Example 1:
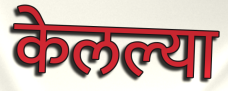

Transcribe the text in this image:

केलल्या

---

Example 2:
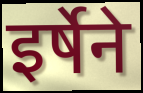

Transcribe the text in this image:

इर्षेने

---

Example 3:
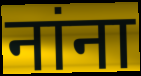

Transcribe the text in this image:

नांना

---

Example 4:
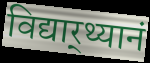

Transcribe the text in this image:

विद्यार्थ्यानं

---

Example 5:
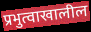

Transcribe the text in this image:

प्रभुत्वाखालील